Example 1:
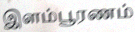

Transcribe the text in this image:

இளம்பூரணம்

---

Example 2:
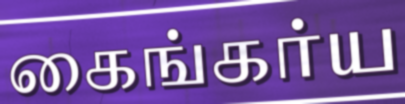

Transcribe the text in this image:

கைங்கர்ய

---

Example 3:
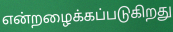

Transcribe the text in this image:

என்றழைக்கப்படுகிறது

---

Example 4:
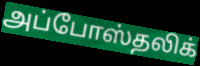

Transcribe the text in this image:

அப்போஸ்தலிக்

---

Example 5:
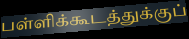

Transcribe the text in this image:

பள்ளிக்கூடத்துக்குப்